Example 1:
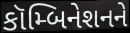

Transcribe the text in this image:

કૉમ્બિનેશનને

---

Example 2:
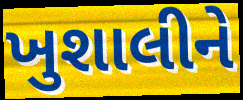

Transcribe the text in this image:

ખુશાલીને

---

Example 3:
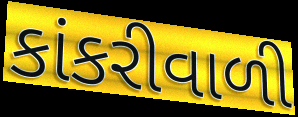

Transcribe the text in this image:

કાંકરીવાળી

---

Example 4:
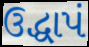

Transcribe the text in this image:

ઉદ્ધાપં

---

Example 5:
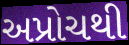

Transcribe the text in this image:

અપ્રોચથી